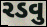
રડવુ